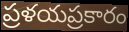
ప్రళయప్రకారం